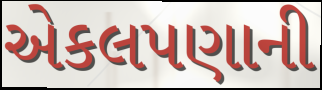
એકલપણાની